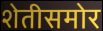
शेतीसमोर